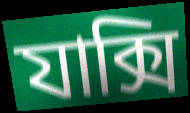
যাক্সি